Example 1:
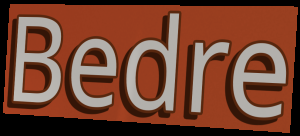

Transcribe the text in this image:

Bedre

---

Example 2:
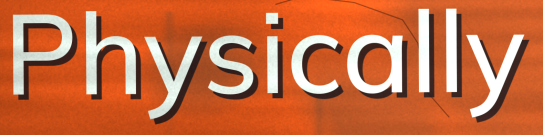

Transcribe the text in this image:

Physically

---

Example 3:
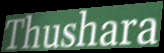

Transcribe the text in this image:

Thushara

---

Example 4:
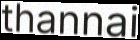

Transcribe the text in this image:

thannai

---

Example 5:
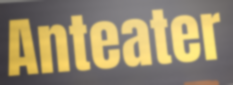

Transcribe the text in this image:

Anteater